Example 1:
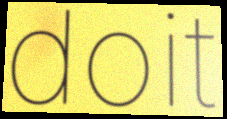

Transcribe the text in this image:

doit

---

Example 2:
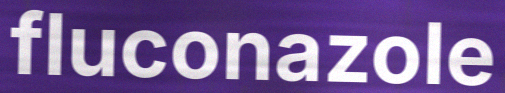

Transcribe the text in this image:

fluconazole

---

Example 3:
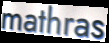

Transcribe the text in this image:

mathras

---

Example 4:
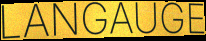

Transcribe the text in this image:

LANGAUGE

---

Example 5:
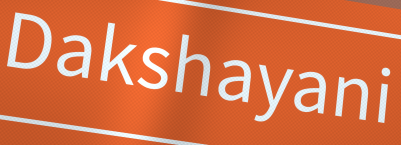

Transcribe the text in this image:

Dakshayani